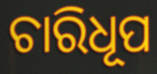
ଚାରିଧୂପ